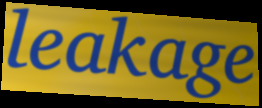
leakage